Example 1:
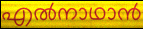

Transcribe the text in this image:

എൽനാഥാൻ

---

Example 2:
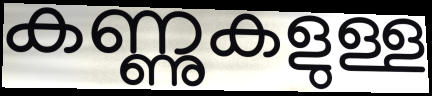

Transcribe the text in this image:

കണ്ണുകളുള്ള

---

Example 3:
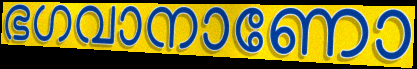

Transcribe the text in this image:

ഭഗവാനാണോ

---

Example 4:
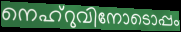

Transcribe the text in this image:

നെഹ്റുവിനോടൊപ്പം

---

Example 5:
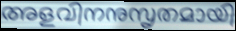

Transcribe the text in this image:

അളവിനനുസൃതമായി